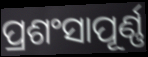
ପ୍ରଶଂସାପୂର୍ଣ୍ଣ